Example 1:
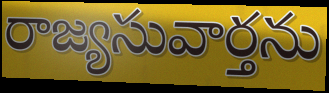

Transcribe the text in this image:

రాజ్యసువార్తను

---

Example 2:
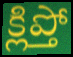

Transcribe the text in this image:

క్లిప్తో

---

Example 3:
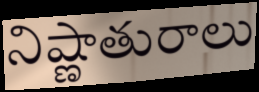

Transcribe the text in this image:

నిష్ణాతురాలు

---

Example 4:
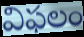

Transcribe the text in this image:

విఫలం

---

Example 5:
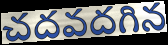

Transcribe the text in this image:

చదవదగిన